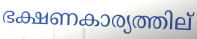
ഭക്ഷണകാര്യത്തില്